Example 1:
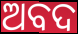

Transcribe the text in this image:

ଅବଦ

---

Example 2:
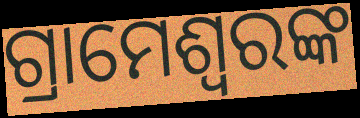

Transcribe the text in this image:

ଗ୍ରାମେଶ୍ୱରଙ୍କ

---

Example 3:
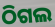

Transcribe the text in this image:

ଠିଗଲ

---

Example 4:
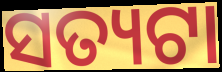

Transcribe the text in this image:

ସତ୍ୟଟା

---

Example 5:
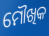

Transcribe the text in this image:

ମୌଖିକ